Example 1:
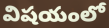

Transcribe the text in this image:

విషయంలో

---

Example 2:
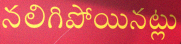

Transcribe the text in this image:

నలిగిపోయినట్లు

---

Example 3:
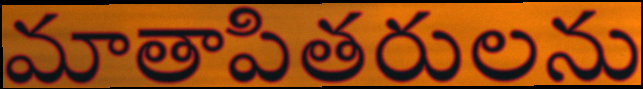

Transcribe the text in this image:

మాతాపితరులను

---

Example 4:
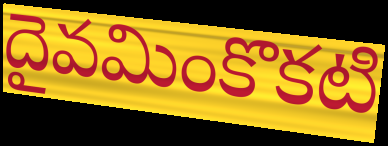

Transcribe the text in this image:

దైవమింకొకటి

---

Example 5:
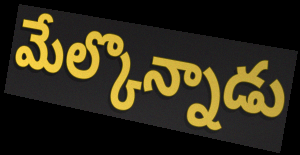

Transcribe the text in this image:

మేల్కొన్నాడు